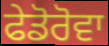
ਫੇਡੋਰੋਵਾ